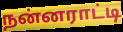
நன்னராட்டி